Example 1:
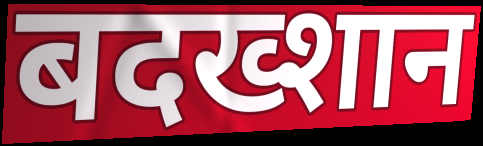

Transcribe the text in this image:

बदख्शान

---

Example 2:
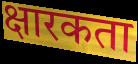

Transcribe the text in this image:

क्षारकता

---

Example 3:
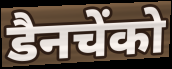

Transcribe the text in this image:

डैनचेंको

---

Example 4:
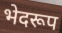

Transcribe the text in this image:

भेदरूप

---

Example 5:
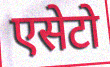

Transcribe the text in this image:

एसेटो